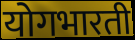
योगभारती